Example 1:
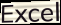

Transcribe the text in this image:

Excel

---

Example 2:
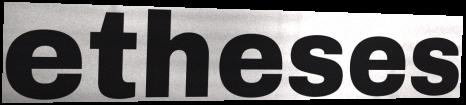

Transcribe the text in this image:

etheses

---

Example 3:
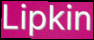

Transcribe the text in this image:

Lipkin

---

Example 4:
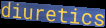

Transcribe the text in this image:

diuretics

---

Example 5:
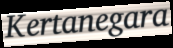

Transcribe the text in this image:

Kertanegara